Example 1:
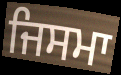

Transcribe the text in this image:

ਜਿਸਮਾ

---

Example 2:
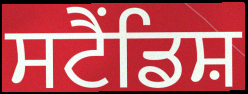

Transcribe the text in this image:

ਸਟੈਂਡਿਸ਼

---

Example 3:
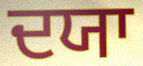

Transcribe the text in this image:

ਦਯਾ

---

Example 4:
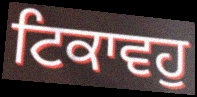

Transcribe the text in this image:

ਟਿਕਾਵਹੁ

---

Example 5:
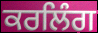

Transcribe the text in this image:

ਕਰਲਿੰਗ